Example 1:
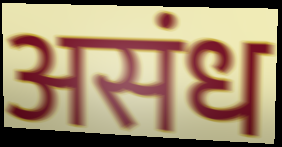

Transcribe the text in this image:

असंध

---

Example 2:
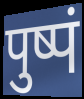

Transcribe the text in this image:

पुष्पं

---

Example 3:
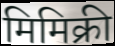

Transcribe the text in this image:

मिमिक्री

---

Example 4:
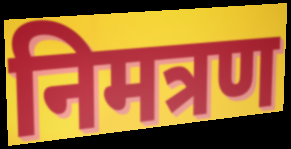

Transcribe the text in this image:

निमत्रण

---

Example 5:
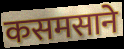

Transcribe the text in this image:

कसमसाने